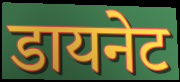
डायनेट